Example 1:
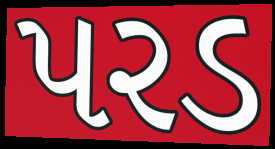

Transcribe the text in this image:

પરડ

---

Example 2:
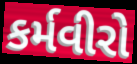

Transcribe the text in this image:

કર્મવીરો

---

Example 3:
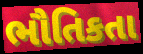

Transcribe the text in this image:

ભૌતિકતા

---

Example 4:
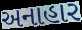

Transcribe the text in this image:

અનાહાર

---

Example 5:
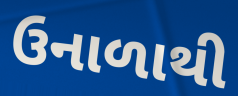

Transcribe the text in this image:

ઉનાળાથી